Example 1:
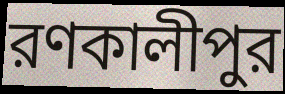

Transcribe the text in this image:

রণকালীপুর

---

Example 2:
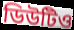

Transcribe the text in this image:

ডিউটিও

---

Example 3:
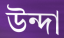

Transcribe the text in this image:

উন্দা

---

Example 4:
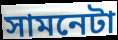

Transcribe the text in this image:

সামনেটা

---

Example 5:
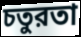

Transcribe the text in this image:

চতুরতা